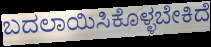
ಬದಲಾಯಿಸಿಕೊಳ್ಳಬೇಕಿದೆ